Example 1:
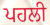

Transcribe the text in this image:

ਪਹਲੀ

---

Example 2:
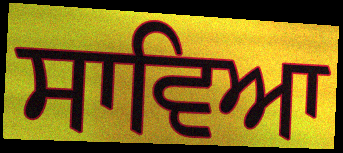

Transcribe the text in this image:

ਸਾਵਿਆ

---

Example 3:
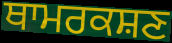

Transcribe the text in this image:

ਥਾਮਰਕਸ਼ਣ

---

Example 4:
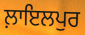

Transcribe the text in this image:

ਲ਼ਾਇਲਪੁਰ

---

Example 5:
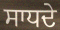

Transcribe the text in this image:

ਸਾਧਦੇ